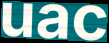
uac